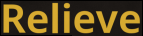
Relieve